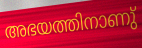
അഭയത്തിനാണു്